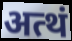
अत्थं